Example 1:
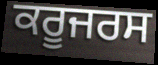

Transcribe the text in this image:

ਕਰੂਜਰਸ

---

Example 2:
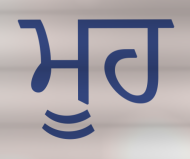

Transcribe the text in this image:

ਮੂਹ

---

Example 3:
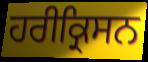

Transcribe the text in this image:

ਹਰੀਕ੍ਰਿਸਨ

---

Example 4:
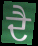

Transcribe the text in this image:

ਦੈ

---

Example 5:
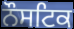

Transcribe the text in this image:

ਨੌਸਟਿਕ